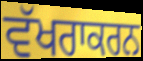
ਵੱਖਰਾਕਰਨ